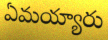
ఏమయ్యారు